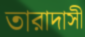
তারাদাসী